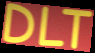
DLT